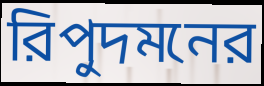
রিপুদমনের